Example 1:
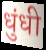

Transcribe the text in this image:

धुंधी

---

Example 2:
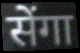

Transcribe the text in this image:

सेंगा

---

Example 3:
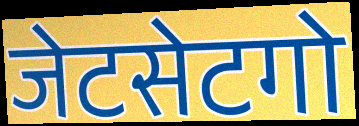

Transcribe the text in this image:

जेटसेटगो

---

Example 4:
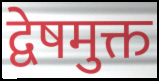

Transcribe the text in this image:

द्वेषमुक्त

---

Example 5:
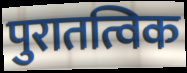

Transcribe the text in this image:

पुरातत्विक